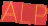
ALP